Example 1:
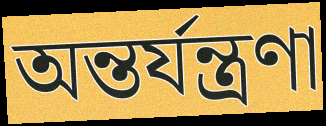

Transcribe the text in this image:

অন্তর্যন্ত্রণা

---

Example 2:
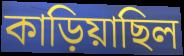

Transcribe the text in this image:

কাড়িয়াছিল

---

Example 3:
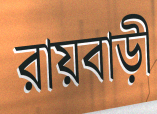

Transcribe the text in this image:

রায়বাড়ী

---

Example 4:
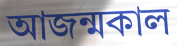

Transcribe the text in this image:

আজন্মকাল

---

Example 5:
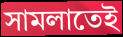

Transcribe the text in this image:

সামলাতেই